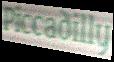
Piccadilly